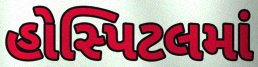
હોસ્પિટલમાં